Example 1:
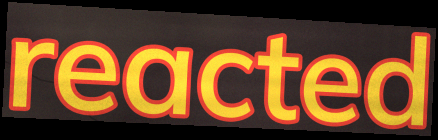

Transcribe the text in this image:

reacted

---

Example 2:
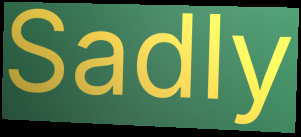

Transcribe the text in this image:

Sadly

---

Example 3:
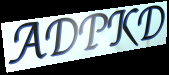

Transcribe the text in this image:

ADPKD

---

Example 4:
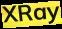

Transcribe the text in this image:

XRay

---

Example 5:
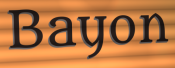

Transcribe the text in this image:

Bayon